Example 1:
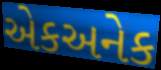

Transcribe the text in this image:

એકઅનેક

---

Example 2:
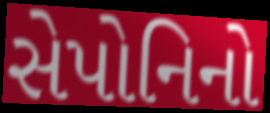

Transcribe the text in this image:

સેપોનિનો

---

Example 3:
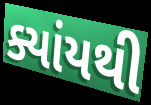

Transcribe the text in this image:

ક્યાંયથી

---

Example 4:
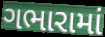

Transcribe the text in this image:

ગભારામાં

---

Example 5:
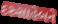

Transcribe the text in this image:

દરુસાહેબને